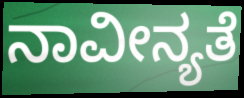
ನಾವೀನ್ಯತೆ